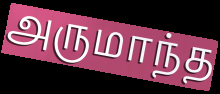
அருமாந்த